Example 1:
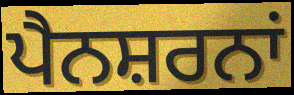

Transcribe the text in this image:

ਪੈਨਸ਼ਰਨਾਂ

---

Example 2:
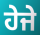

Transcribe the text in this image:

ਹੇਜੇ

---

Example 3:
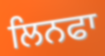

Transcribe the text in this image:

ਲਿਨਫਾ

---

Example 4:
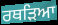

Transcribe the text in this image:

ਰਥੜਿਆ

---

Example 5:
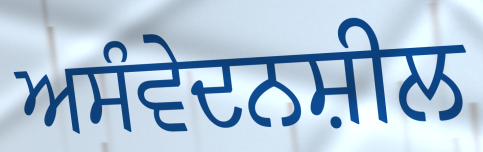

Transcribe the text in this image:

ਅਸੰਵੇਦਨਸ਼ੀਲ